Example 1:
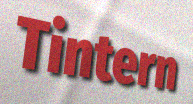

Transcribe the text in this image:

Tintern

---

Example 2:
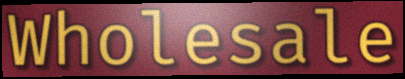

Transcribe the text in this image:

Wholesale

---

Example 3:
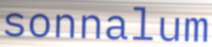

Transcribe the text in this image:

sonnalum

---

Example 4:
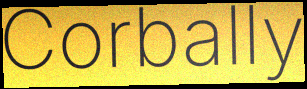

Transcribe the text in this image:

Corbally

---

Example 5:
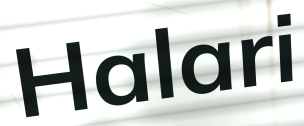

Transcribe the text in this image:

Halari